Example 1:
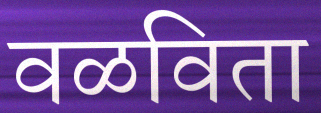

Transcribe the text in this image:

वळविता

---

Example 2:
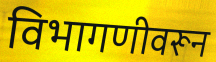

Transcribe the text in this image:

विभागणीवरून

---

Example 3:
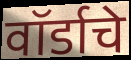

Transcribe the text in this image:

वॉर्डाचे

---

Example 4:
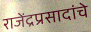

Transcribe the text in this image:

राजेंद्रप्रसादांचे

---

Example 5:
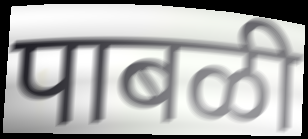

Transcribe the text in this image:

पाबळी